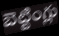
బెట్టింగ్లు